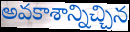
అవకాశాన్నిచ్చిన